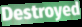
Destroyed